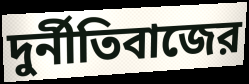
দুর্নীতিবাজের